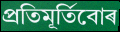
প্ৰতিমূৰ্তিবোৰ